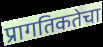
प्रागतिकतेचा